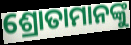
ଶ୍ରୋତାମାନଙ୍କୁ